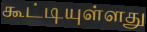
கூட்டியுள்ளது